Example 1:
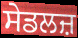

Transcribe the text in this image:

ਸੇਡਲਜ਼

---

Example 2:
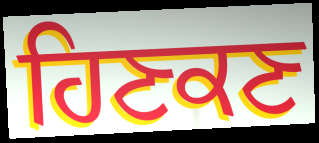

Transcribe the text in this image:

ਹਿਣਕਣ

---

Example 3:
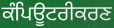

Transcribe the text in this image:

ਕੰਪਿਊਟਰੀਕਰਣ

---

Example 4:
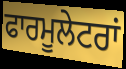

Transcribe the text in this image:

ਫਾਰਮੂਲੇਟਰਾਂ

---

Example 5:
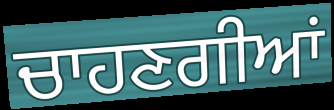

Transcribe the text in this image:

ਚਾਹਣਗੀਆਂ